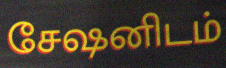
சேஷனிடம்